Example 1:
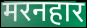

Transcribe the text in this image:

मरनहार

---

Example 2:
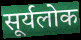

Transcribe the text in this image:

सूर्यलोक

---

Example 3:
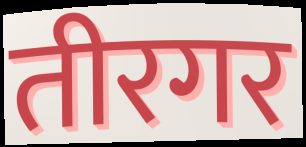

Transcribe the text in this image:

तीरगर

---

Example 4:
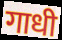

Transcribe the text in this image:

गाधी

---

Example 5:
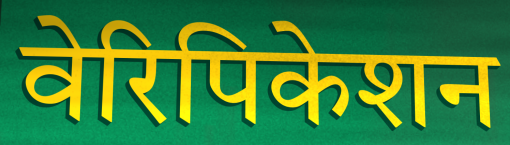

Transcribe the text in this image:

वेरिपिकेशन